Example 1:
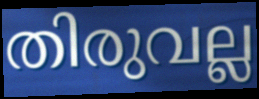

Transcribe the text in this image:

തിരുവല്ല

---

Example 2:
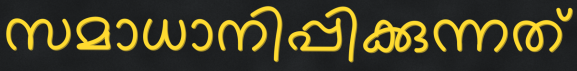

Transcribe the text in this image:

സമാധാനിപ്പിക്കുന്നത്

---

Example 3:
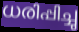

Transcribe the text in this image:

ധരിപ്പിച്ചു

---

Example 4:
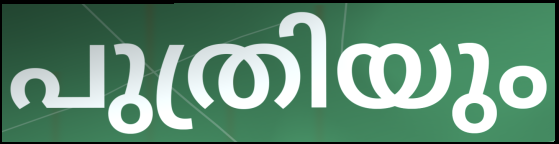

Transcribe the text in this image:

പുത്രിയും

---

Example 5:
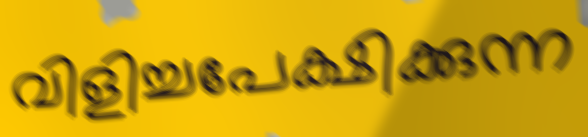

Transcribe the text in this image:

വിളിച്ചപേക്ഷിക്കുന്ന